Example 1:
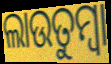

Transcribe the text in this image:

ଲାଉତୁମ୍ବା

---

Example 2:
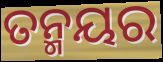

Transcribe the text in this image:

ତନ୍ମୟର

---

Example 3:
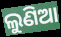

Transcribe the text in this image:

ଲୁଣିଆ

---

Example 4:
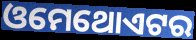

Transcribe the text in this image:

ଓମେଥୋଏଟର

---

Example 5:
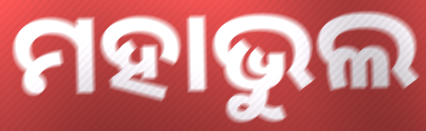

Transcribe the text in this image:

ମହାଭୁଲ